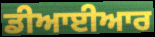
ਡੀਆਈਆਰ